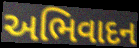
અભિવાદન